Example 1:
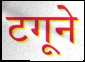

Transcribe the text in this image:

टगूने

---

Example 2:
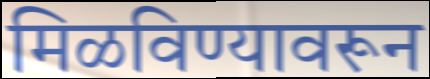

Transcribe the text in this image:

मिळविण्यावरून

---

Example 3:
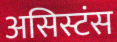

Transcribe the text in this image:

असिस्टंस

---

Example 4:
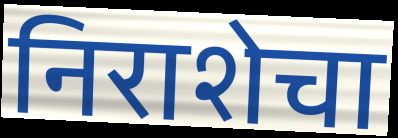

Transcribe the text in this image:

निराशेचा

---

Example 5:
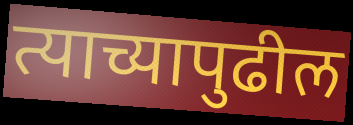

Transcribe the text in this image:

त्याच्यापुढील